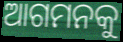
ଆଗମନକୁ